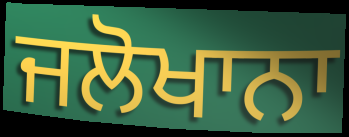
ਜਲੋਖਾਨਾ